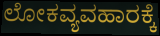
ಲೋಕವ್ಯವಹಾರಕ್ಕೆ